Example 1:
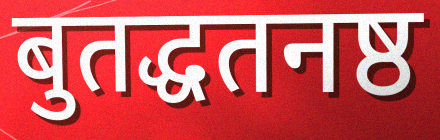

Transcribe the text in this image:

बुतद्धतनष्ठ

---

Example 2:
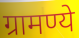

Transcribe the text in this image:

ग्रामण्ये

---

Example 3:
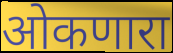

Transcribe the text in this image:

ओकणारा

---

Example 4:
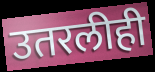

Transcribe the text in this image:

उतरलीही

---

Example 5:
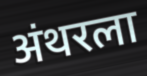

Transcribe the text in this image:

अंथरला